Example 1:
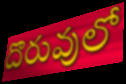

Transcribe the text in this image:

దొరువులో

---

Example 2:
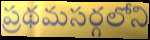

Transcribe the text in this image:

ప్రథమసర్గలోని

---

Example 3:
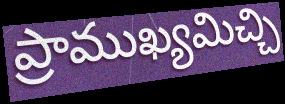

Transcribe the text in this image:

ప్రాముఖ్యమిచ్చి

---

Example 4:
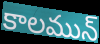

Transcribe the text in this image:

కాలమున్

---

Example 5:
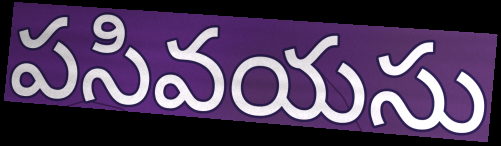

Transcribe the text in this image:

పసివయసు